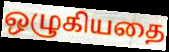
ஒழுகியதை